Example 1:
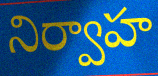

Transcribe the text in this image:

నిర్వాహ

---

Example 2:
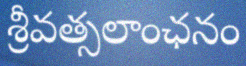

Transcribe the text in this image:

శ్రీవత్సలాంఛనం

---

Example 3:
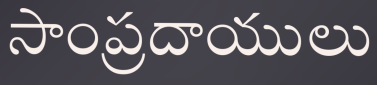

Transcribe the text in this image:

సాంప్రదాయులు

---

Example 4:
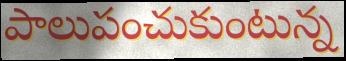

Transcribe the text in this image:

పాలుపంచుకుంటున్న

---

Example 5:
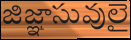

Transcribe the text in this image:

జిజ్ఞాసువులై